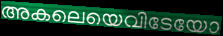
അകലെയെവിടേയോ